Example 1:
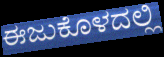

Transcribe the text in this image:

ಈಜುಕೊಳದಲ್ಲಿ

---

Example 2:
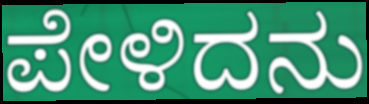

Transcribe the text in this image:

ಪೇಳಿದನು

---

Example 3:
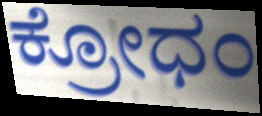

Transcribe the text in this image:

ಕ್ರೋಧಂ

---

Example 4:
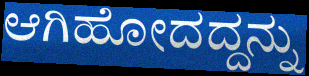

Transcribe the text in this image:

ಆಗಿಹೋದದ್ದನ್ನು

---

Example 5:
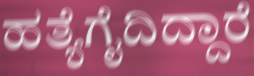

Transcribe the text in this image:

ಹತ್ಯೆಗೈದಿದ್ದಾರೆ